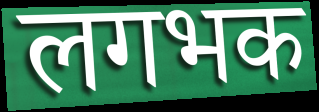
लगभक